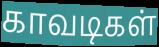
காவடிகள்